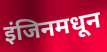
इंजिनमधून